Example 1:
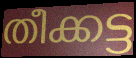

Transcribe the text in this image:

തീക്കട്ട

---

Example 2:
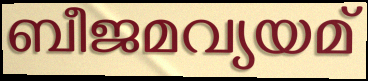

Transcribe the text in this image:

ബീജമവ്യയമ്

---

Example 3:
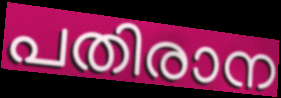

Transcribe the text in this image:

പതിരാന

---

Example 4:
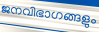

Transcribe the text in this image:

ജനവിഭാഗങ്ങളും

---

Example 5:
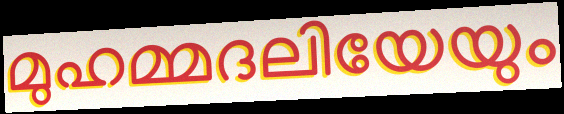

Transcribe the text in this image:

മുഹമ്മദലിയേയും